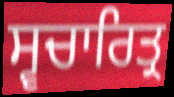
ਸ੍ਵਚਾਰਿਤ੍ਰ